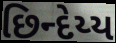
છિન્દેય્ય